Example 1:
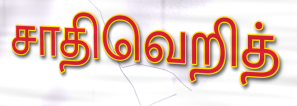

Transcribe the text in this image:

சாதிவெறித்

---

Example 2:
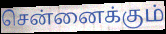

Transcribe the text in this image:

சென்னைக்கும்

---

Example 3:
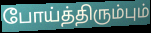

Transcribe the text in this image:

போய்த்திரும்பும்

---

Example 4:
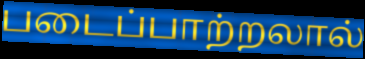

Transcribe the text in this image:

படைப்பாற்றலால்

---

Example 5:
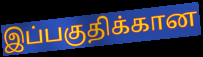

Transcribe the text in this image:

இப்பகுதிக்கான